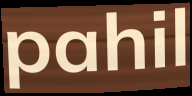
pahil